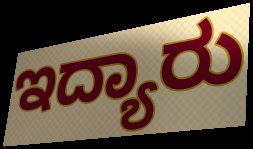
ಇದ್ಯಾರು